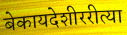
बेकायदेशीररीत्या